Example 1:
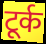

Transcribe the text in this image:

टूर्क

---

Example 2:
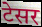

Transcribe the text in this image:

टेसर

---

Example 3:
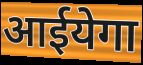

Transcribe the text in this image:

आईयेगा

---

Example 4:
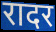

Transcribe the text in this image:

रादर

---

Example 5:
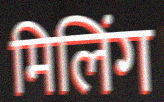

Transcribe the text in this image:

मिलिंग